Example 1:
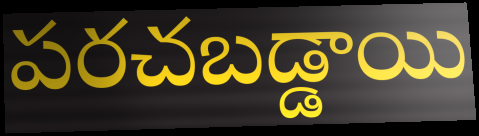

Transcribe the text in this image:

పరచబడ్డాయి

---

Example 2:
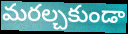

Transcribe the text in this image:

మరల్చకుండా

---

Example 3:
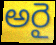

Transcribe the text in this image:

అరై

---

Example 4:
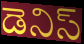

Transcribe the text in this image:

డెనిస్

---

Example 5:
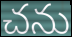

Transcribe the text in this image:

చను